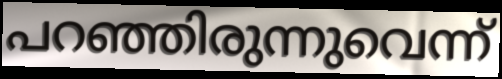
പറഞ്ഞിരുന്നുവെന്ന്